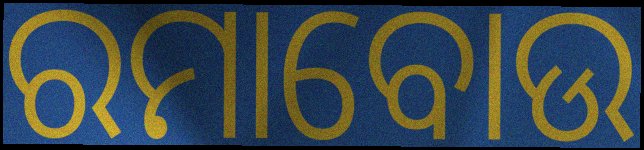
ରମାବୋଉ